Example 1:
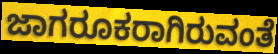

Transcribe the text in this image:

ಜಾಗರೂಕರಾಗಿರುವಂತೆ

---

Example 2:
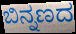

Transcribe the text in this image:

ಬಿನ್ನಣದ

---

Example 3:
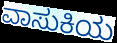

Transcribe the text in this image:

ವಾಸುಕಿಯ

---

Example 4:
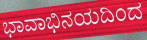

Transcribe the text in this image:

ಭಾವಾಭಿನಯದಿಂದ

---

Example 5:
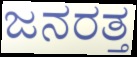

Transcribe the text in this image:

ಜನರತ್ತ